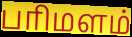
பரிமளம்